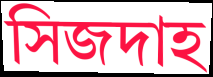
সিজদাহ